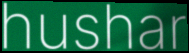
hushar